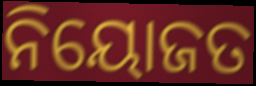
ନିୟୋଜତ